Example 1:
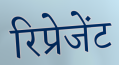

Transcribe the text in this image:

रिप्रेजेंट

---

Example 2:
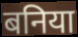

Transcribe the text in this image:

बनिया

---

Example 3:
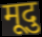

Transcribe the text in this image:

मूदु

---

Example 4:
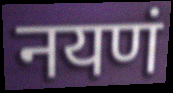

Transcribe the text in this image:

नयणं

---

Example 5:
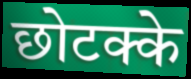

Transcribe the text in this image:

छोटक्के